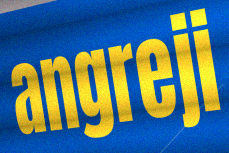
angreji